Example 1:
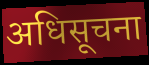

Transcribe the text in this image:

अधिसूचना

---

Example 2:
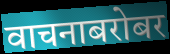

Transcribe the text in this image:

वाचनाबरोबर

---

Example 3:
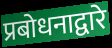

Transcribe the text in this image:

प्रबोधनाद्वारे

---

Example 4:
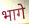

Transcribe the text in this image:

भागे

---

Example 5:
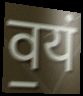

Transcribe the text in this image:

व॒यं